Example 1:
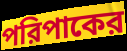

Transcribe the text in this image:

পরিপাকের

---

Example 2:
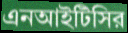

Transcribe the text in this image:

এনআইটিসির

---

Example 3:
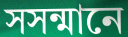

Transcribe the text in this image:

সসন্মানে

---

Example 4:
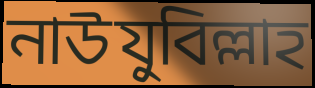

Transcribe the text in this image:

নাউযুবিল্লাহ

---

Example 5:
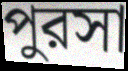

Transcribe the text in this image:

পুরসা